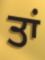
ਤਾਂ